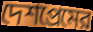
দেশপ্রেমের